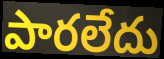
పారలేదు